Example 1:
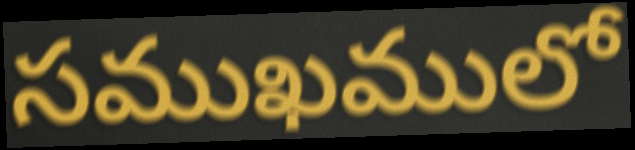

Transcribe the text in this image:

సముఖములో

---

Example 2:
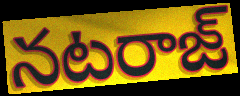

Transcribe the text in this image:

నటరాజ్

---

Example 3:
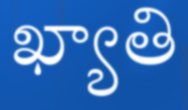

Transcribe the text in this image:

ఖ్యాతి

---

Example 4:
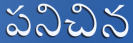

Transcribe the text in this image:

పనిచిన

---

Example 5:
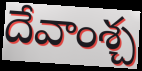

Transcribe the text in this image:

దేవాంశ్చ